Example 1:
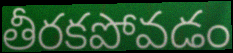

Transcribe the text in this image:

తీరకపోవడం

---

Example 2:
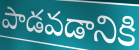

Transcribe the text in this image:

పాడవడానికి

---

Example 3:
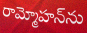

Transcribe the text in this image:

రామ్మోహన్‌ను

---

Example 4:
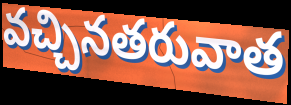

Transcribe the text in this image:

వచ్చినతరువాత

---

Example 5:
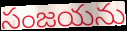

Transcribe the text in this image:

సంజయను